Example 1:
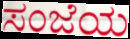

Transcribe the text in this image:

ಸಂಜೆಯ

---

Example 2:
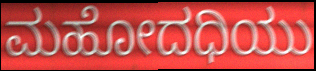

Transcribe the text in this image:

ಮಹೋದಧಿಯು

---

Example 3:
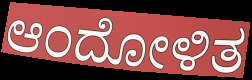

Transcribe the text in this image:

ಆಂದೋಳಿತ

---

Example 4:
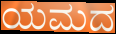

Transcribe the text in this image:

ಯಮದ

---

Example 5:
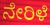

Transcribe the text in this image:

ನೇರಿಳೆ